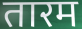
तारम